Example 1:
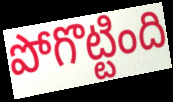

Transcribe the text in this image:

పోగొట్టింది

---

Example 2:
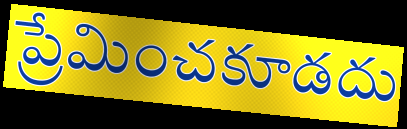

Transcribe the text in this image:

ప్రేమించకూడదు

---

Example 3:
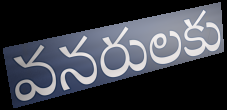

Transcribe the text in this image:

వనరులకు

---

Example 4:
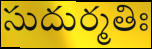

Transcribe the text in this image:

సుదుర్మతిః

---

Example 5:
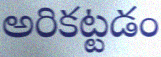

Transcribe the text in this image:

అరికట్టడం